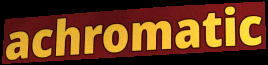
achromatic